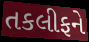
તકલીફને